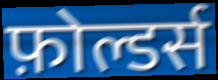
फ़ोल्डर्स